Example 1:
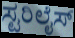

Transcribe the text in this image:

ಸ್ಟರಿಲೈಸ್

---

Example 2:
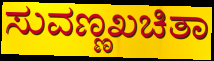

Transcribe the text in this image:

ಸುವಣ್ಣಖಚಿತಾ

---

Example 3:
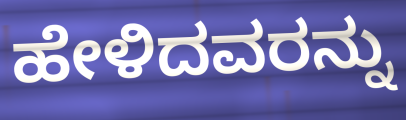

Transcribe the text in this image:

ಹೇಳಿದವರನ್ನು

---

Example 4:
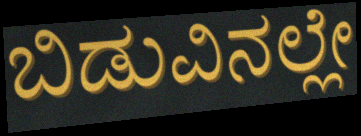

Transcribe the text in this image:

ಬಿಡುವಿನಲ್ಲೇ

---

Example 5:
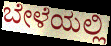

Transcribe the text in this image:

ಬೇಳೆಯಲ್ಲಿ